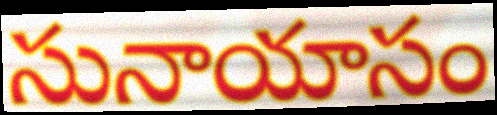
సునాయాసం